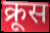
क्रूस